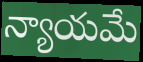
న్యాయమే